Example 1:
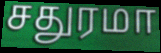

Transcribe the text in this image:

சதுரமா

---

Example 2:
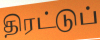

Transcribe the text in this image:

திரட்டுப்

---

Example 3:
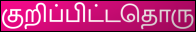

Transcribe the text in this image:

குறிப்பிட்டதொரு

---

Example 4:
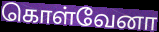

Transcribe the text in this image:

கொள்வேனா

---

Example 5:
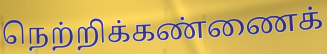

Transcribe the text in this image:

நெற்றிக்கண்ணைக்